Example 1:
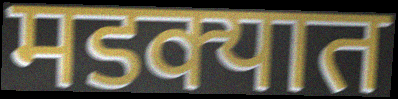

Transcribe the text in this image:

मडक्यात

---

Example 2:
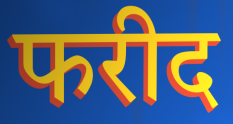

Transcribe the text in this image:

फरीद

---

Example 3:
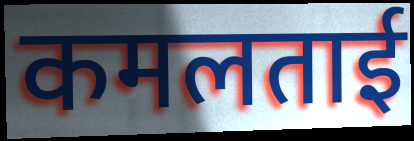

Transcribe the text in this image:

कमलताई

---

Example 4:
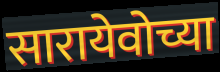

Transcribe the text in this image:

सारायेवोच्या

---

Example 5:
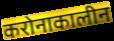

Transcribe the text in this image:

करोनाकालीन